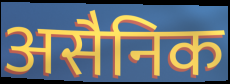
असैनिक